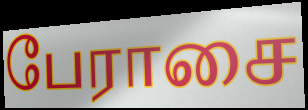
பேராசை